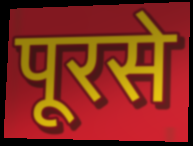
पूरसे